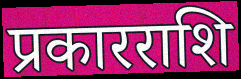
प्रकारराशि